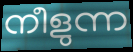
നീളുന്ന